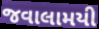
જવાલામયી